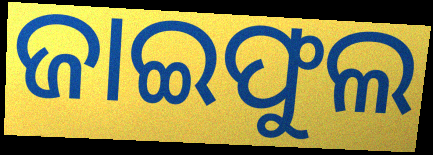
ଜାଇଫୁଲ